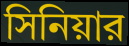
সিনিয়ার